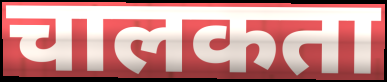
चालकता